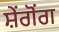
ਸ਼ੇਂਗੋਂਗ